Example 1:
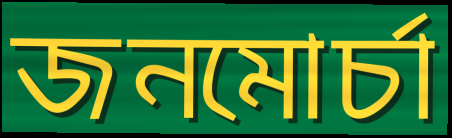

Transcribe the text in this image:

জনমোর্চা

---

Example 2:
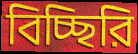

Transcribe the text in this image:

বিচ্ছিরি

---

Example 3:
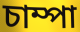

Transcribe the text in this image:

চাম্পা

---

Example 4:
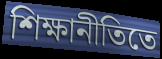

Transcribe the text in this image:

শিক্ষানীতিতে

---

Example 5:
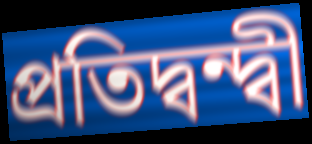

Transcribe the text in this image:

প্রতিদ্বন্দ্বী